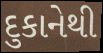
દુકાનેથી